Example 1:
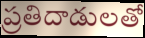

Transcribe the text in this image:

ప్రతిదాడులతో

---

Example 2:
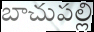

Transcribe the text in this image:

బాచుపల్లి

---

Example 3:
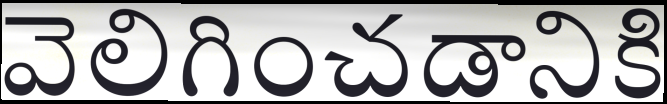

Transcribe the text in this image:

వెలిగించడానికి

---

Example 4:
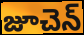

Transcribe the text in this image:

జూచెన్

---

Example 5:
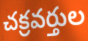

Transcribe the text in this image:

చక్రవర్తుల